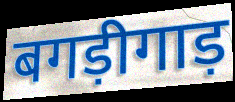
बगड़ीगाड़